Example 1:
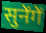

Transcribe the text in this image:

सुनेंगें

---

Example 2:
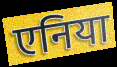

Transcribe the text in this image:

एनिया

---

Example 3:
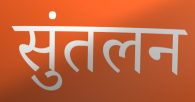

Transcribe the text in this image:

सुंतलन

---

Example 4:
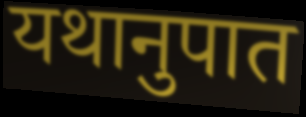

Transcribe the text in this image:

यथानुपात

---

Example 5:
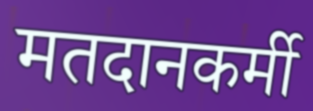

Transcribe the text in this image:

मतदानकर्मी